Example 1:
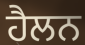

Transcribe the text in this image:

ਹੈਲਨ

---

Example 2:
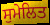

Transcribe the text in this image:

ਸੁਮੇਲਿਤ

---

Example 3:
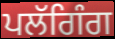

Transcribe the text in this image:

ਪਲੱਗਿੰਗ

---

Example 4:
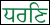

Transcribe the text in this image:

ਧਰਣਿ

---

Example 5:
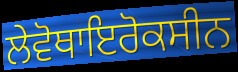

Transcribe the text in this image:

ਲੇਵੋਥਾਇਰੋਕਸੀਨ